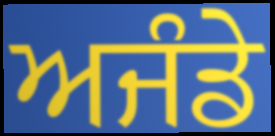
ਅਜੰਡੇ